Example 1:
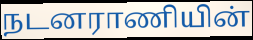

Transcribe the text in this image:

நடனராணியின்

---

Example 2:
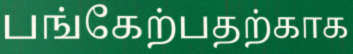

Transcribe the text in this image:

பங்கேற்பதற்காக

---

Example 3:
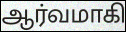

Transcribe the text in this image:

ஆர்வமாகி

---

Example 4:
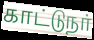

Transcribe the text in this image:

காட்டுநர்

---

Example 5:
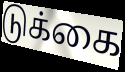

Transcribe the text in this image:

டுக்கை